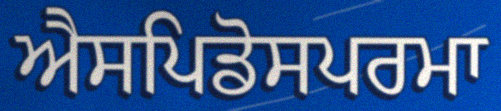
ਐਸਪਿਡੋਸਪਰਮਾ